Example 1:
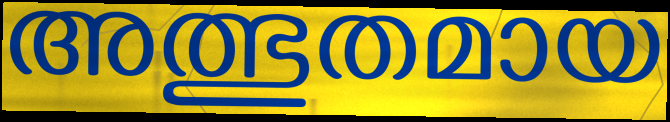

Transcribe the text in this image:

അത്ഭുതമായ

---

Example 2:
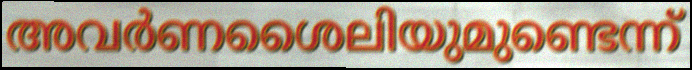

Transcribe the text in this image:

അവർണശൈലിയുമുണ്ടെന്ന്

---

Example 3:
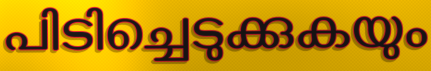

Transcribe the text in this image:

പിടിച്ചെടുക്കുകയും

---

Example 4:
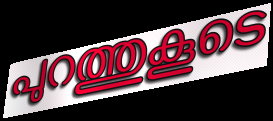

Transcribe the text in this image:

പുറത്തുകൂടെ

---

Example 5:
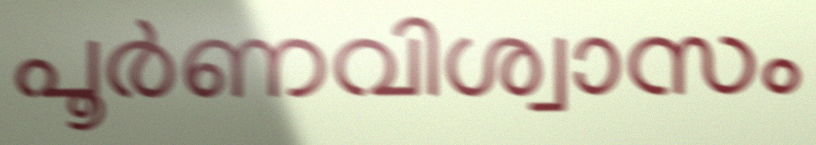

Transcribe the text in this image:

പൂർണവിശ്വാസം